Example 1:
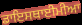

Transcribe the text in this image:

ਡਾਇਸਥਾਈਮੀਆ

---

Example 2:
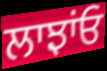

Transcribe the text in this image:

ਲਾਝਾਂਓ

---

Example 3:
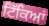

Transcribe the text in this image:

ਟਿੱਕਿਆਂ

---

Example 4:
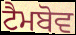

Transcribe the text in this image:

ਟੈਮਬੋਵ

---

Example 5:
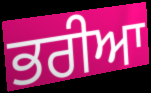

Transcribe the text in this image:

ਭਰੀਆ